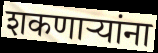
शकणार्‍यांना